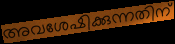
അവശേഷിക്കുന്നതിന്